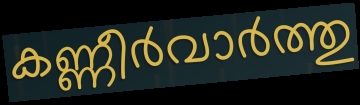
കണ്ണീർവാർത്തു